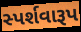
સ્પર્શવારૂપ